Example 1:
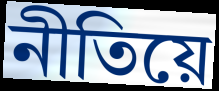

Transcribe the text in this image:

নীতিয়ে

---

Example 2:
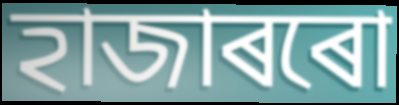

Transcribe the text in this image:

হাজাৰৰো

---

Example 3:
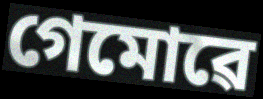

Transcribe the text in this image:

গেমোৱে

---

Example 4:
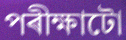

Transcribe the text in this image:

পৰীক্ষাটো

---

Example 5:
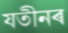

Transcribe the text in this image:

যতীনৰ